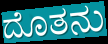
ದೊತನು